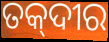
ତକ୍‌ଦୀର